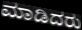
ಮಾಡಿದರು